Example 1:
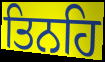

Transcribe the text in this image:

ਤਿਨਹਿ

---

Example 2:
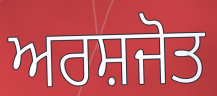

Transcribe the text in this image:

ਅਰਸ਼ਜੋਤ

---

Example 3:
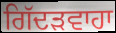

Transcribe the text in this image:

ਗਿੱਦੜਵਾਹਾ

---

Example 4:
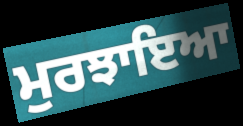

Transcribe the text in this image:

ਮੁਰਝਾਇਆ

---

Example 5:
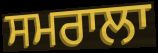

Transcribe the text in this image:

ਸਮਰਾਲਾ